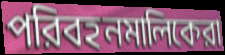
পরিবহনমালিকেরা